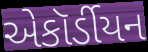
એકૉર્ડીયન